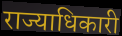
राज्याधिकारी